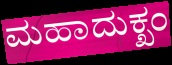
ಮಹಾದುಕ್ಖಂ